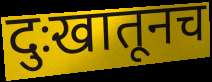
दुःखातूनच